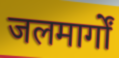
जलमार्गों